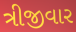
ત્રીજીવાર